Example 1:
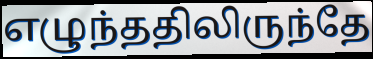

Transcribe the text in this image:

எழுந்ததிலிருந்தே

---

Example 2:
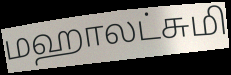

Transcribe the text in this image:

மஹாலட்சுமி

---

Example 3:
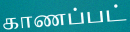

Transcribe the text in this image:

காணப்பட்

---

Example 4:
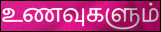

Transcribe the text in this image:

உணவுகளும்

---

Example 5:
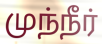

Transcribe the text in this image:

முந்நீர்